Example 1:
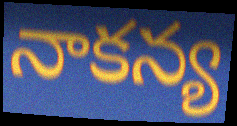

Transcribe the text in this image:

నాకన్య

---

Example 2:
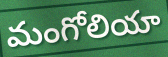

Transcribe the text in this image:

మంగోలియా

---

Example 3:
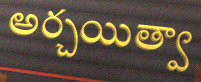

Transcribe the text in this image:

అర్చయిత్వా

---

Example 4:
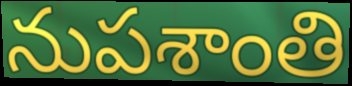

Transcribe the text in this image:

నుపశాంతి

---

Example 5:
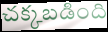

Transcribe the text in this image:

చక్కబడింది